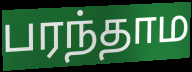
பரந்தாம